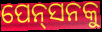
ପେନ୍‌ସନକୁ